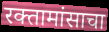
रक्तामांसाचा